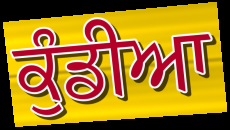
ਕੁੰਡੀਆ